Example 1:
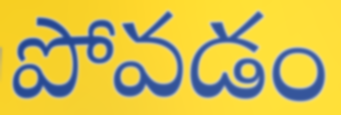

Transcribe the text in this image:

పోవడం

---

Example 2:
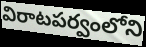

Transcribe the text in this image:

విరాటపర్వంలోని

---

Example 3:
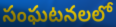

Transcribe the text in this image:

సంఘటనలలో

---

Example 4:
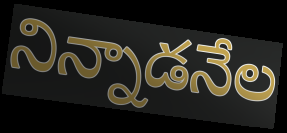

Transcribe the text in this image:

నిన్నాడనేల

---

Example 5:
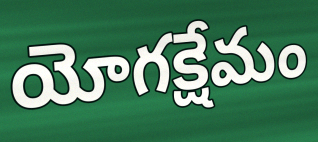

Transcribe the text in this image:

యోగక్షేమం